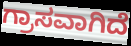
ಗ್ರಾಸವಾಗಿದೆ